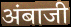
अंबाजी